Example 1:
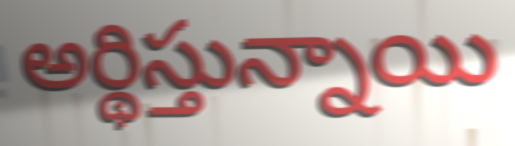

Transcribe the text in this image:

అర్థిస్తున్నాయి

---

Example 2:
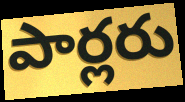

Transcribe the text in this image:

పార్లరు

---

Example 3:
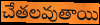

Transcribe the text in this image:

చేతలవుతాయి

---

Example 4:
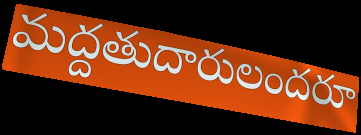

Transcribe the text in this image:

మద్దతుదారులందరూ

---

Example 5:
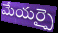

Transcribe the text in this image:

మేయర్పై